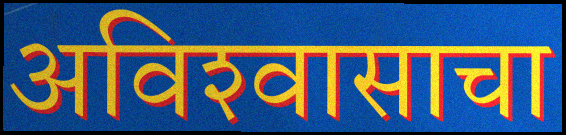
अविश्वासाचा